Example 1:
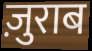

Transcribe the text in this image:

ज़ुराब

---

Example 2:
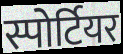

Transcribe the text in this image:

स्पोर्टियर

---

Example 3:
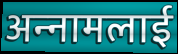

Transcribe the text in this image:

अन्नामलाई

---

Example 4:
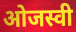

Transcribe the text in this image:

ओजस्वी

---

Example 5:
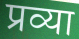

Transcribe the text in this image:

प्रव्या